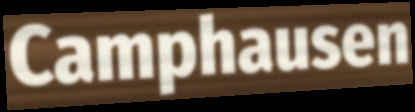
Camphausen